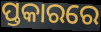
ପ୍ତକାରରେ